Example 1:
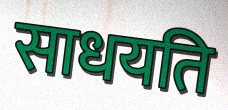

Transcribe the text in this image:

साधयति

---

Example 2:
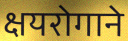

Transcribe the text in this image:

क्षयरोगाने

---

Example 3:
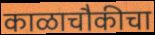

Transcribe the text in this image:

काळाचौकीचा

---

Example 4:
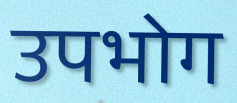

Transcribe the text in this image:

उपभोग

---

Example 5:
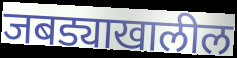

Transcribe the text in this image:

जबड्याखालील